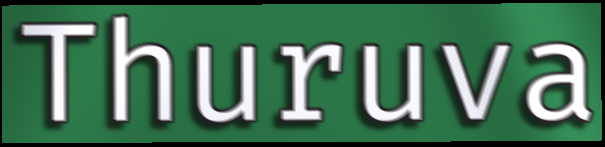
Thuruva